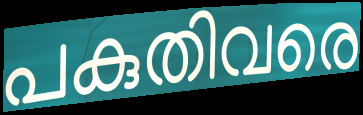
പകുതിവരെ